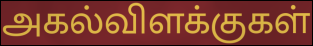
அகல்விளக்குகள்